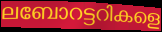
ലബോറട്ടറികളെ